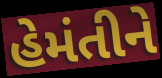
હેમંતીને